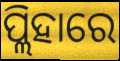
ପ୍ଲିହାରେ